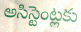
అసిస్టెంట్లకు